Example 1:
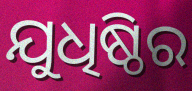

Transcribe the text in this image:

ଯୁଧିଷ୍ଠିର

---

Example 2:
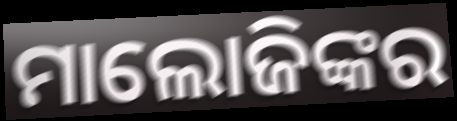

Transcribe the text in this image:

ମାଲୋଜିଙ୍କର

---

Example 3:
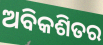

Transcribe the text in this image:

ଅବିକଶିତର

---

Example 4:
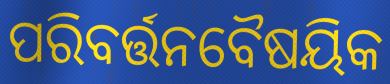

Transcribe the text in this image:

ପରିବର୍ତ୍ତନବୈଷୟିକ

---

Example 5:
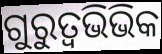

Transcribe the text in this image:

ଗୁରୁତ୍ଵଭିଭିକ